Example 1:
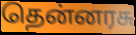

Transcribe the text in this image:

தென்னரசு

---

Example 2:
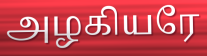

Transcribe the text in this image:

அழகியரே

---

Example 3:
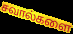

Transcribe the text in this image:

சவால்களை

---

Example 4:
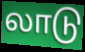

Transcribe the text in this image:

லாடு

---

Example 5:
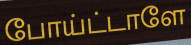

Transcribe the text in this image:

போய்ட்டாளே